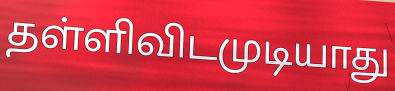
தள்ளிவிடமுடியாது